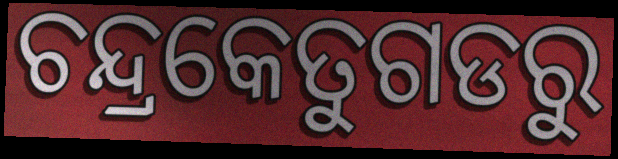
ଚନ୍ଦ୍ରକେତୁଗଡରୁ